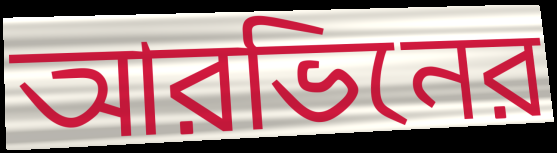
আরভিনের